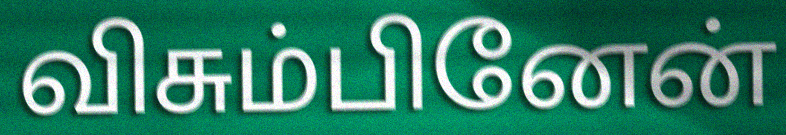
விசும்பினேன்